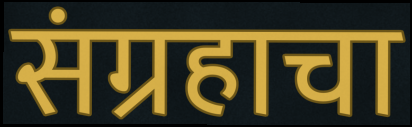
संग्रहाचा